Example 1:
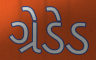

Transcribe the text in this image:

ગ્રેડેડ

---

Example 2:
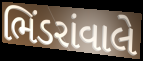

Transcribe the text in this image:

ભિંડરાંવાલે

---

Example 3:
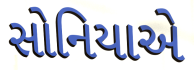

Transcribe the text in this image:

સોનિયાએ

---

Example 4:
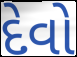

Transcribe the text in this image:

દેવો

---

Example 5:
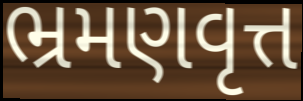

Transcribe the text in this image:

ભ્રમણવૃત્ત